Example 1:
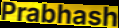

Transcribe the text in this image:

Prabhash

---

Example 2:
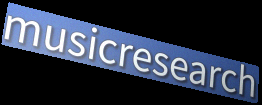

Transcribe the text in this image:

musicresearch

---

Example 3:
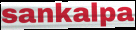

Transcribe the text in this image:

sankalpa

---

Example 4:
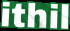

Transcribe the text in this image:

ithil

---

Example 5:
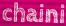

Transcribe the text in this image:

chaini